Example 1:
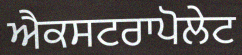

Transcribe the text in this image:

ਐਕਸਟਰਾਪੋਲੇਟ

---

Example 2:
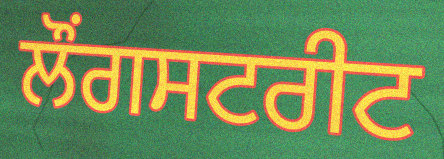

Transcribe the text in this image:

ਲੌਂਗਸਟਰੀਟ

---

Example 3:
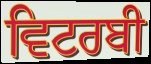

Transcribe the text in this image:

ਵਿਟਰਬੀ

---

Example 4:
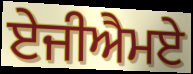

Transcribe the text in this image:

ਏਜੀਐਮਏ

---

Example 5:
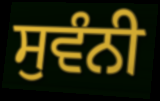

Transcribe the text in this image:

ਸੁਵੰਨੀ